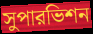
সুপারভিশন